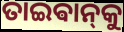
ତାଇଵାନ୍‌କୁ